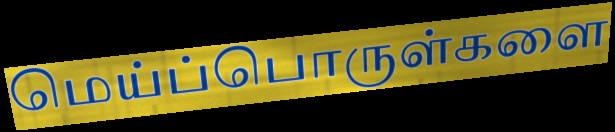
மெய்ப்பொருள்களை